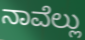
ನಾವೆಲ್ಲು